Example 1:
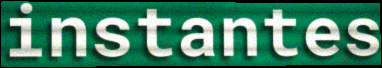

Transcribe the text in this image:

instantes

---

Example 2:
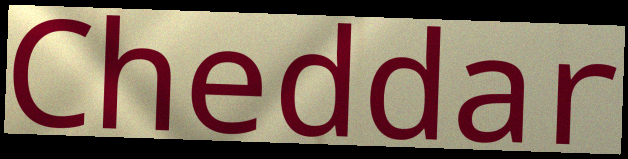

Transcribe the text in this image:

Cheddar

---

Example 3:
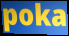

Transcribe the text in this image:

poka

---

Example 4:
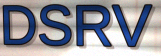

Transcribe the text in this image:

DSRV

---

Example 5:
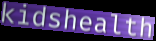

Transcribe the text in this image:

kidshealth